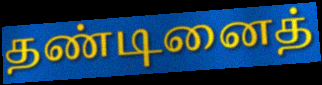
தண்டினைத்